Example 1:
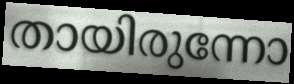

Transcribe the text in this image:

തായിരുന്നോ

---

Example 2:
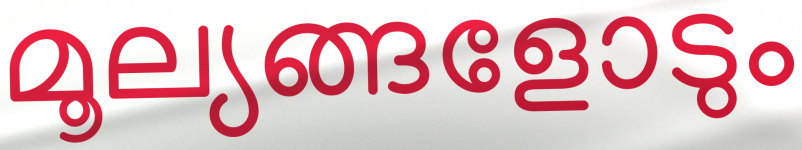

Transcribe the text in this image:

മൂല്യങ്ങളോടും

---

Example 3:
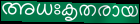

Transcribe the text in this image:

അധഃകൃതരായ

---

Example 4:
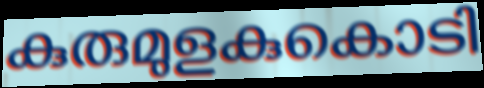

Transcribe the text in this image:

കുരുമുളകുകൊടി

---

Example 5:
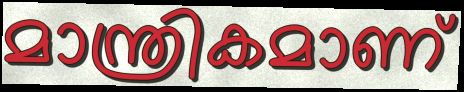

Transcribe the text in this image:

മാന്ത്രികമാണ്